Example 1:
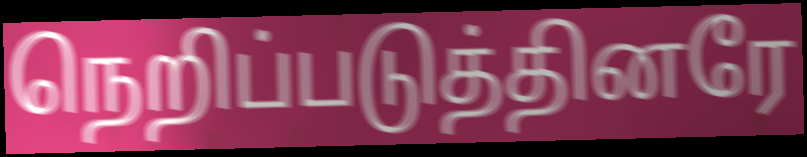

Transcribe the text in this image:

நெறிப்படுத்தினரே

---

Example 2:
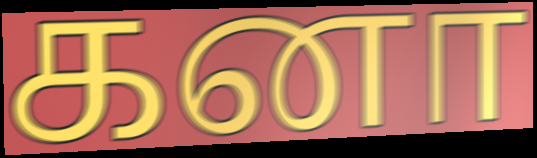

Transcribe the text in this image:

கனா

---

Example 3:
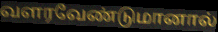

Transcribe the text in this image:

வளரவேண்டுமானால்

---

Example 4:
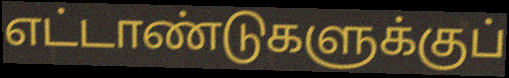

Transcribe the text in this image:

எட்டாண்டுகளுக்குப்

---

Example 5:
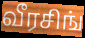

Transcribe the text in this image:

வீரசிங்